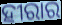
ହୀରାର